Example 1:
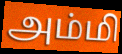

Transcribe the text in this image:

அம்மி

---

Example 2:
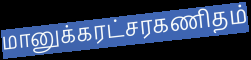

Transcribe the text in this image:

மானுக்கரட்சரகணிதம்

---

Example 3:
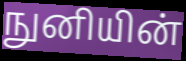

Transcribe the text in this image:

நுனியின்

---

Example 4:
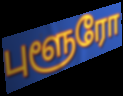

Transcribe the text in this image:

புளூரோ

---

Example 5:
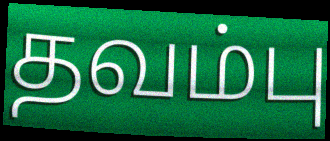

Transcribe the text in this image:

தவம்பு